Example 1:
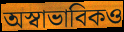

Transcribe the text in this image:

অস্বাভাবিকও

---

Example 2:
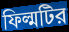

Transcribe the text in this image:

ফিল্মটির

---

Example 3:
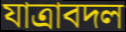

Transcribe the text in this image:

যাত্রাবদল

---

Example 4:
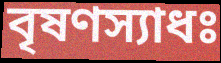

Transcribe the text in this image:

বৃষণস্যাধঃ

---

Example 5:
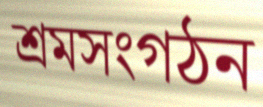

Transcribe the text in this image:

শ্রমসংগঠন